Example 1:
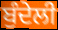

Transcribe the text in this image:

ਬੁੰਦੇਲੀ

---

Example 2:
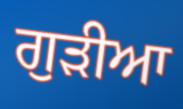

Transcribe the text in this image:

ਗੁੜੀਆ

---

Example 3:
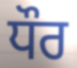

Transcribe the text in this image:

ਧੌਰ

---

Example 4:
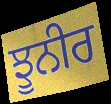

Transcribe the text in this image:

ਝੂਨੀਰ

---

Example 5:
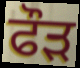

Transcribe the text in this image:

ਫੌਡ਼